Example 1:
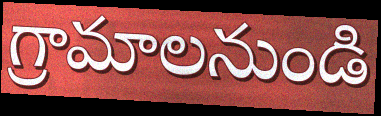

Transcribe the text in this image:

గ్రామాలనుండి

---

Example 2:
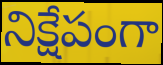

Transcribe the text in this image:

నిక్షేపంగా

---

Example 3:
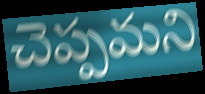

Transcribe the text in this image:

చెప్పమని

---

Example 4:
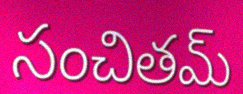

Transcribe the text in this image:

సంచితమ్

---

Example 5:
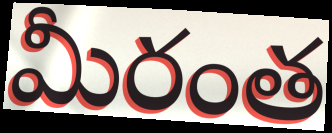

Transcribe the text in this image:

మీరంత